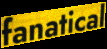
fanatical